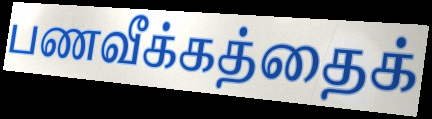
பணவீக்கத்தைக்